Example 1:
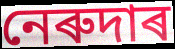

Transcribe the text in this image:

নেৰুদাৰ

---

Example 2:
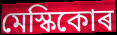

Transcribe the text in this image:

মেস্কিকোৰ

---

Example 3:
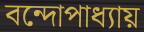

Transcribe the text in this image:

বন্দোপাধ্যায়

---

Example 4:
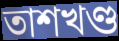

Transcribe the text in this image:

তাশখণ্ড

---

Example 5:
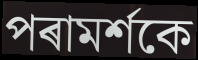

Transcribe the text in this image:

পৰামৰ্শকে